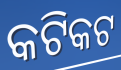
କଟିକଟ